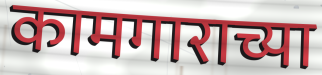
कामगाराच्या